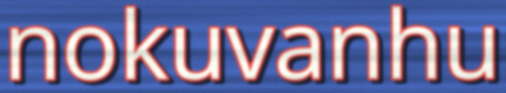
nokuvanhu